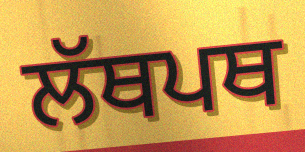
ਲੱਥਪਥ